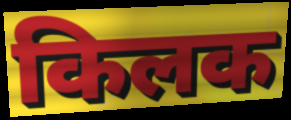
किलक